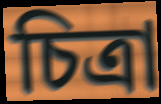
চিত্রা